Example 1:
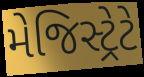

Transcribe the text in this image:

મેજિસ્ટ્રેટે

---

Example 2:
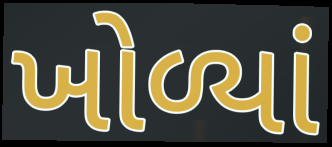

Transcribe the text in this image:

ખોળ્યાં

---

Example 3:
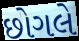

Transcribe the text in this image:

છોગલે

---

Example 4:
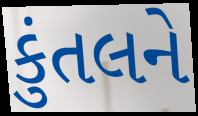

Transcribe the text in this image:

કુંતલને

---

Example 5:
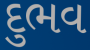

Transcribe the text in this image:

દુભવ